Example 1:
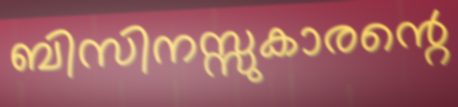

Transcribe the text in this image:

ബിസിനസ്സുകാരന്റെ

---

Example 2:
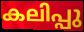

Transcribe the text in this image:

കലിപ്പു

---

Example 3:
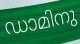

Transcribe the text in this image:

ഡാമിനു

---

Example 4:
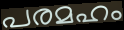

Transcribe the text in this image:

പരമഹം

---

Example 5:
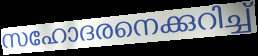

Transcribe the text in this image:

സഹോദരനെക്കുറിച്ച്